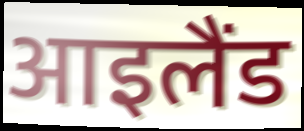
आइलैंड